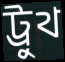
ট্রুথ